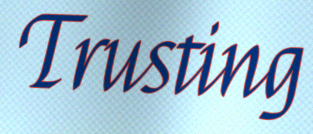
Trusting